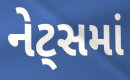
નેટ્સમાં